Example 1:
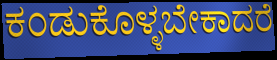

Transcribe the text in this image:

ಕಂಡುಕೊಳ್ಳಬೇಕಾದರೆ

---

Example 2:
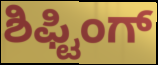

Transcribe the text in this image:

ಶಿಫ್ಟಿಂಗ್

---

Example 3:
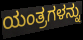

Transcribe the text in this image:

ಯಂತ್ರಗಳನ್ನು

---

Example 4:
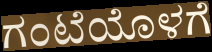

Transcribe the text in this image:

ಗಂಟೆಯೊಳಗೆ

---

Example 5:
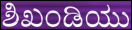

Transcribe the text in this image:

ಶಿಖಂಡಿಯು